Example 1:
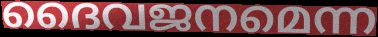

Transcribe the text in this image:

ദൈവജനമെന്ന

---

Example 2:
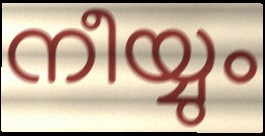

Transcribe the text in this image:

നീയ്യും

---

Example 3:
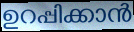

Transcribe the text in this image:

ഉറപ്പിക്കാൻ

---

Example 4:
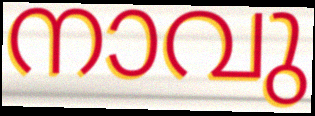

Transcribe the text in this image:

നാവു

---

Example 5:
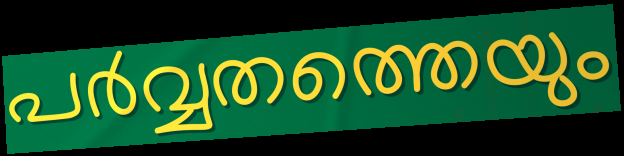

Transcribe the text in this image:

പർവ്വതത്തെയും